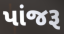
પાંજરૂ